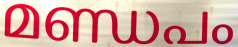
മണ്ഡപം